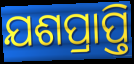
ଯଶପ୍ରାପ୍ତି